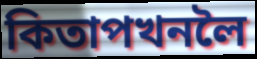
কিতাপখনলৈ